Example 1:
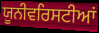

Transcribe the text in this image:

ਯੂਨੀਵਰਿਸਟੀਆਂ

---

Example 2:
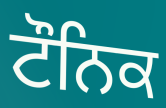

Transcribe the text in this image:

ਟੌਨਿਕ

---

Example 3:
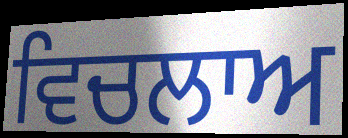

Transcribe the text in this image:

ਵਿਚਲਾਅ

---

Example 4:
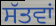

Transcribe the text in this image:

ਸੱਤਵਾਂ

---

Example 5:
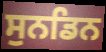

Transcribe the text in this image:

ਸੁਨਡਿਨ